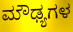
ಮೌಢ್ಯಗಳ